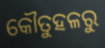
କୌତୁହଳରୁ